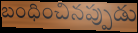
బంధించినప్పుడు